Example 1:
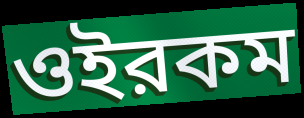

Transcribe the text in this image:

ওইরকম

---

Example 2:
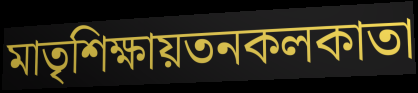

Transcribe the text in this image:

মাতৃশিক্ষায়তনকলকাতা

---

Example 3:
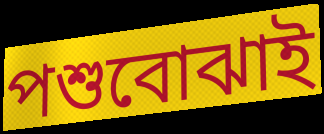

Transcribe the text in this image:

পশুবোঝাই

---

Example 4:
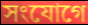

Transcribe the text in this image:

সংযোগে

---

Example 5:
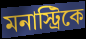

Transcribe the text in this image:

মনাস্ট্রিকে